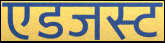
एडजस्ट